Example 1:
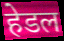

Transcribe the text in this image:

हेडल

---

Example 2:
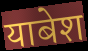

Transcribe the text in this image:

याबेश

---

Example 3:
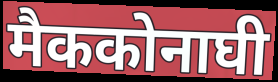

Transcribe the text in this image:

मैककोनाघी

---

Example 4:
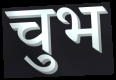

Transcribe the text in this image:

चुभ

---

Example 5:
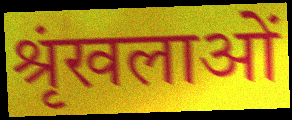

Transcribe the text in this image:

श्रृंखलाओं